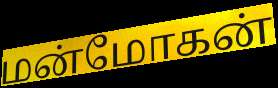
மன்மோகன்